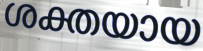
ശക്തയായ